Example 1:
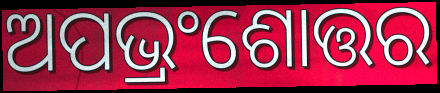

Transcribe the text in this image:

ଅପଭ୍ରଂଶୋତ୍ତର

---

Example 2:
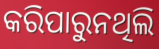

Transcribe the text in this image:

କରିପାରୁନଥିଲି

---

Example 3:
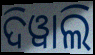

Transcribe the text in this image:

ଦିୱାଲି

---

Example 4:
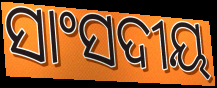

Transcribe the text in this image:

ସାଂସଦୀୟ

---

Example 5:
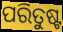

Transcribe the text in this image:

ପରିତୁଷ୍ଟ